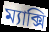
ম্যাক্সি